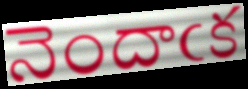
నెందాఁక